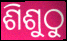
ଶିଶୁଠୁ